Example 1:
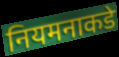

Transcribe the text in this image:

नियमनाकडे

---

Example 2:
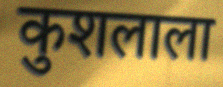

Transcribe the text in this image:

कुशलाला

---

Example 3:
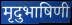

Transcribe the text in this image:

मृदुभाषिणी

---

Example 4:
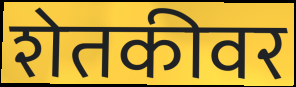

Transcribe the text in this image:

शेतकीवर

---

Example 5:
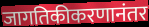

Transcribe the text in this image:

जागतिकीकरणानंतर